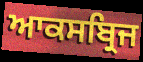
ਆਕਸਬ੍ਰਿਜ